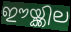
ഈയ്ക്കില